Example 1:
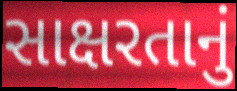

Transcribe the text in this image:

સાક્ષરતાનું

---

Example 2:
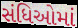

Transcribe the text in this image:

સંધિઓમાં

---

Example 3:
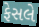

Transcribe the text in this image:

ફેસલે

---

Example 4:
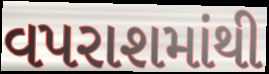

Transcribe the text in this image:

વપરાશમાંથી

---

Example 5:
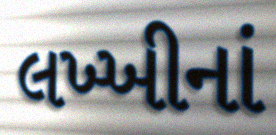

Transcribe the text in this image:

લખ્ખીનાં